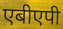
एबीएपी